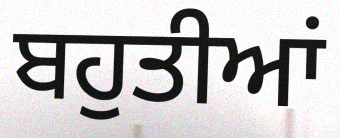
ਬਹੁਤੀਆਂ